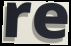
re